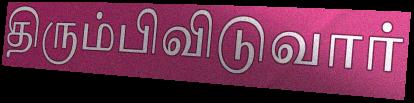
திரும்பிவிடுவார்